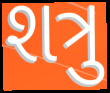
શત્રુ